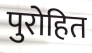
पुरोहित